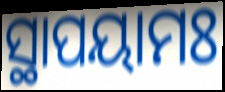
ସ୍ଥାପୟାମଃ